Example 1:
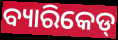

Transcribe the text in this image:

ବ୍ୟାରିକେଡ୍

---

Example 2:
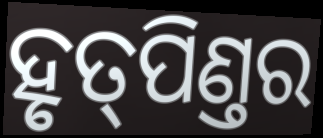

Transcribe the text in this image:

ହୃତ୍‌ପିଣ୍ତର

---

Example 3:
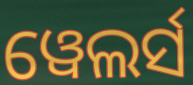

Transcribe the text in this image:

ୱେଲର୍ସ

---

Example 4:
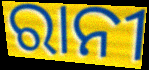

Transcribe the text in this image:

ରାନୀ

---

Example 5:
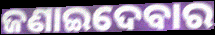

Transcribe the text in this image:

ଜଣାଇଦେବାର